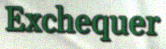
Exchequer